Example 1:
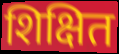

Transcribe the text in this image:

शिक्षित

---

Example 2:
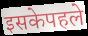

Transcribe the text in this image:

इसकेपहले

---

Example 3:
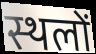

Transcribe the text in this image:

स्थलों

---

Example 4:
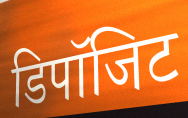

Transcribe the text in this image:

डिपॉजिट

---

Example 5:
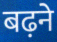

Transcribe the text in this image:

बढ़ने